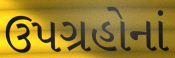
ઉપગ્રહોનાં